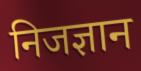
निजज्ञान